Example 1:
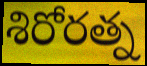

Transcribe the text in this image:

శిరోరత్న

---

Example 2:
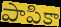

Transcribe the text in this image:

పాపికా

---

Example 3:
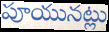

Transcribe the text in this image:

పూయునట్లు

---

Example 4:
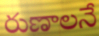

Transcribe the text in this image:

రుణాలనే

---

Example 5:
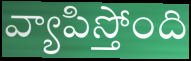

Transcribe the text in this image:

వ్యాపిస్తోంది